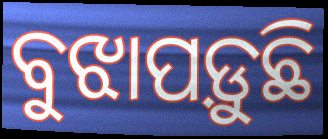
ବୁଝାପଡ଼ୁଛି